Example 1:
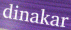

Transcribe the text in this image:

dinakar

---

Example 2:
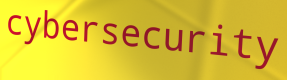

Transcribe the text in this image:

cybersecurity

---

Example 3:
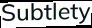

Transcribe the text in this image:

Subtlety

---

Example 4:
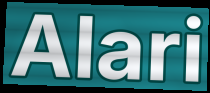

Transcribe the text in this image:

Alari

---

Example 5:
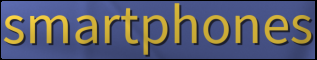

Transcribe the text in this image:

smartphones